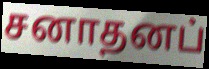
சனாதனப்